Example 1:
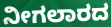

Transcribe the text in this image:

ನೀಗಲಾರದ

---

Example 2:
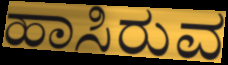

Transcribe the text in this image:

ಹಾಸಿರುವ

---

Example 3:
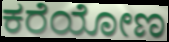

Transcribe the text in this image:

ಕರೆಯೋಣ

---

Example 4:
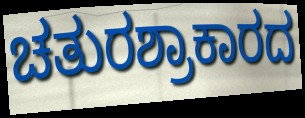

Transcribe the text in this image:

ಚತುರಶ್ರಾಕಾರದ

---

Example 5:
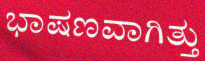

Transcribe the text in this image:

ಭಾಷಣವಾಗಿತ್ತು